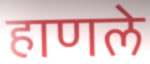
हाणले